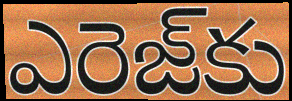
ఎరెజ్‌కు